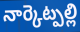
నార్కెట్పల్లి